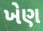
ખેણ